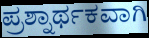
ಪ್ರಶ್ನಾರ್ಥಕವಾಗಿ